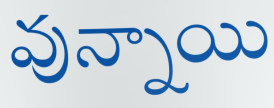
వున్నాయి